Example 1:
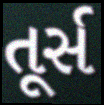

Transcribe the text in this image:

તૂર્સ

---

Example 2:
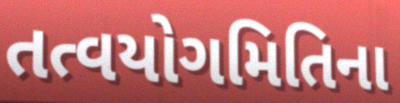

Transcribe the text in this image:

તત્વયોગમિતિના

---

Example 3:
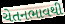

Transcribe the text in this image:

ચેતનભાવથી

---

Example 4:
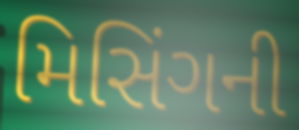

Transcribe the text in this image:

મિસિંગની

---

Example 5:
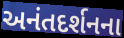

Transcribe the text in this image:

અનંતદર્શનના